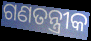
ଗଣତନ୍ତ୍ରୀକ